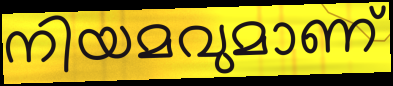
നിയമവുമാണ്